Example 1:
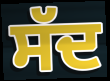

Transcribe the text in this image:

ਸੱਦ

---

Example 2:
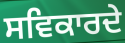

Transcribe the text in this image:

ਸਵਿਕਾਰਦੇ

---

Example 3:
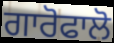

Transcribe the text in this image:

ਗਾਰੋਫਾਲੋ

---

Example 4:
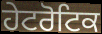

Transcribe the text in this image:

ਹੇਟਰੋਟਿਕ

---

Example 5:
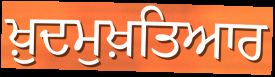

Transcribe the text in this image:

ਖ਼ੁਦਮੁਖ਼ਤਿਆਰ